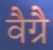
वैग्रै